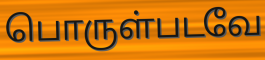
பொருள்படவே